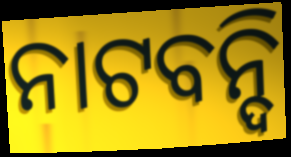
ନାଟବନ୍ଦି